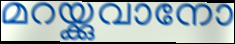
മറയ്ക്കുവാനോ